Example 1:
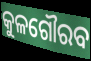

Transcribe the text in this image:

କୁଳଗୌରବ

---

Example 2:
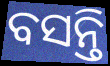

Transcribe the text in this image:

ବସନ୍ତି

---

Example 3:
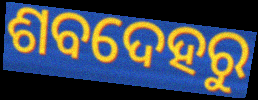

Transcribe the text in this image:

ଶବଦେହରୁ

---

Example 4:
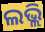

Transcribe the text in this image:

ଲଭ୍ଲି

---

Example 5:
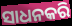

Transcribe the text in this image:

ସାଧନକରି